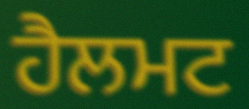
ਹੈਲਮਟ